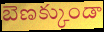
బెణక్కుండా